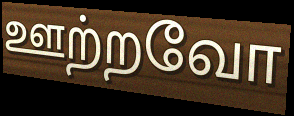
ஊற்றவோ